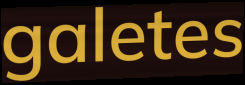
galetes